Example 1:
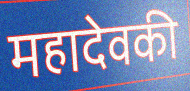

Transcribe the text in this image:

महादेवकी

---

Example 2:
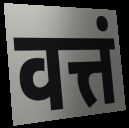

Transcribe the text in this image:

वत्तं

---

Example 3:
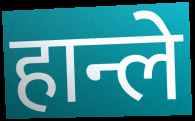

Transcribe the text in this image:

हान्ले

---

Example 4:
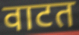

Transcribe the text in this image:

वाटत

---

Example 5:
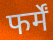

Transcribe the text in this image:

फर्में